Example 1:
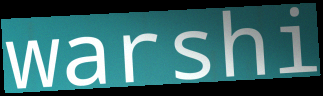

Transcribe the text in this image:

warshi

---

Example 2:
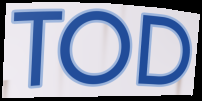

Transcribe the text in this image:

TOD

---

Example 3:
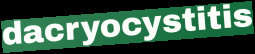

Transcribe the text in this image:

dacryocystitis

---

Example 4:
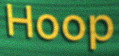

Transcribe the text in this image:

Hoop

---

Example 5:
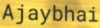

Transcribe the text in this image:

Ajaybhai